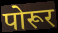
पोरूर